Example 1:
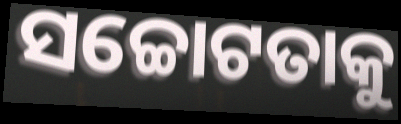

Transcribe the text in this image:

ସଚ୍ଚୋଟତାକୁ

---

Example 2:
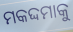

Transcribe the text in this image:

ମକଦ୍ଦମାକୁ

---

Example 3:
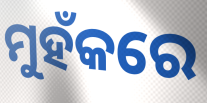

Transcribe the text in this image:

ମୁହଁକରେ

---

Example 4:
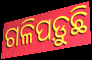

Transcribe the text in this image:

ଗଳିପଡ଼ୁଛି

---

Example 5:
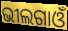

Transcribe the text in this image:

ଭୀଲଗାଓଁ